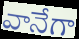
వానేగా